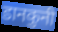
डानकुनी